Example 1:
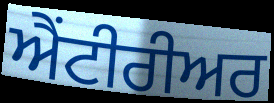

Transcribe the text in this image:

ਐਂਟੀਰੀਅਰ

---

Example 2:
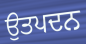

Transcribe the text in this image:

ਉਤਪਦਨ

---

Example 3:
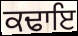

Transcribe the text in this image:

ਕਢਾਇ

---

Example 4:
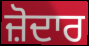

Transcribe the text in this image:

ਜ਼ੋਦਾਰ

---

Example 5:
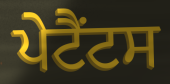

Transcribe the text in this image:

ਪੇਟੈਂਟਸ